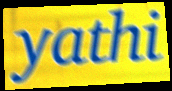
yathi